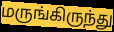
மருங்கிருந்து